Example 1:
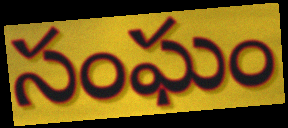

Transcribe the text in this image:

సంఘం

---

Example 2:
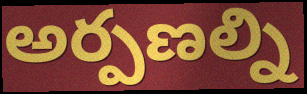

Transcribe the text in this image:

అర్పణల్ని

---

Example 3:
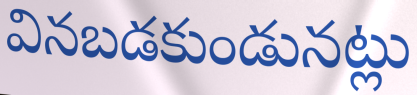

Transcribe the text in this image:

వినబడకుండునట్లు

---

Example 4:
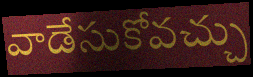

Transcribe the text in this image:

వాడేసుకోవచ్చు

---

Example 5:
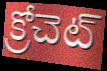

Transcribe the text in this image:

క్రోచెట్